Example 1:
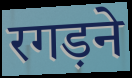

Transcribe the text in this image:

रगड़ने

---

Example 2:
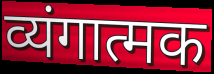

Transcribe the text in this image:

व्यंगात्मक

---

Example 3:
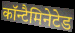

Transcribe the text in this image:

कॉन्टैमिनेटेड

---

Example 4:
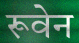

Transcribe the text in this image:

रूवेन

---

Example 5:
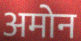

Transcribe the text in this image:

अमोन